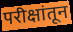
परीक्षांतून